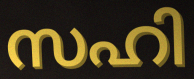
സഹി